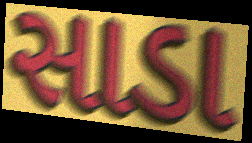
સાડા